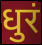
धुरं